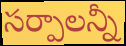
సర్పాలన్నీ